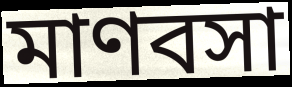
মাণবসা